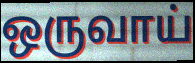
ஒருவாய்